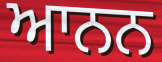
ਆਨਨ